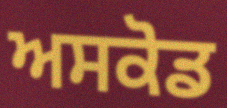
ਅਸਕੋਡ